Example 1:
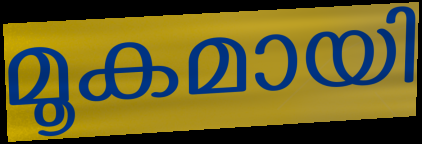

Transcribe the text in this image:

മൂകമായി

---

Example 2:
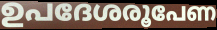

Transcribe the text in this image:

ഉപദേശരൂപേണ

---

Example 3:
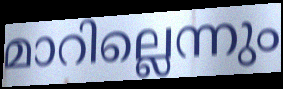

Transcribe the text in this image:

മാറില്ലെന്നും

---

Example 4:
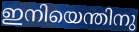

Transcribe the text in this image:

ഇനിയെന്തിനു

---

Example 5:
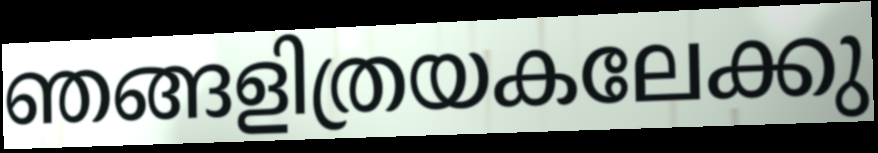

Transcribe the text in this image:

ഞങ്ങളിത്രയകലേക്കു